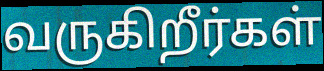
வருகிறீர்கள்